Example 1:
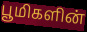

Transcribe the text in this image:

பூமிகளின்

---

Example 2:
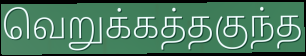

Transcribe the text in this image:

வெறுக்கத்தகுந்த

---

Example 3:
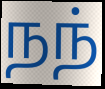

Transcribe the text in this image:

நந்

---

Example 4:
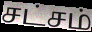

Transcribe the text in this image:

சட்சம்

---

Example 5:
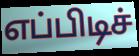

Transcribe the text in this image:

எப்பிடிச்